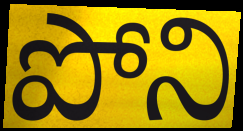
పోని